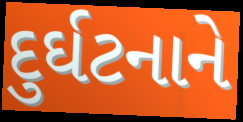
દુર્ઘટનાને